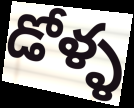
డోళ్ళ